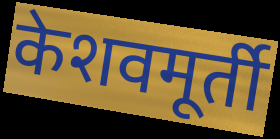
केशवमूर्ती